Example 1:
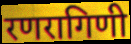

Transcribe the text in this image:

रणरागिणी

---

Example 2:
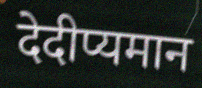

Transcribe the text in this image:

देदीप्यमान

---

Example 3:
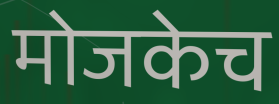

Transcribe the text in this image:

मोजकेच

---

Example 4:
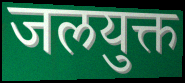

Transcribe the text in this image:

जलयुक्त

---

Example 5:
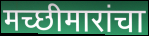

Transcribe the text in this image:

मच्छीमारांचा